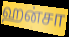
ஹன்சா